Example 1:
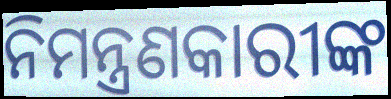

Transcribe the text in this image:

ନିମନ୍ତ୍ରଣକାରୀଙ୍କ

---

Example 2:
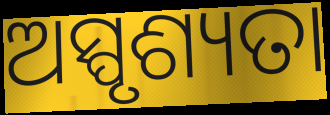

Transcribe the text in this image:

ଅସ୍ପୃଶ୍ୟତା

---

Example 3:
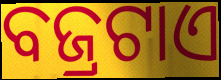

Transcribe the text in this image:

ବଜ୍ରଟାଏ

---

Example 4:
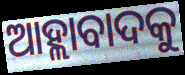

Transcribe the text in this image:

ଆହ୍ଲାବାଦକୁ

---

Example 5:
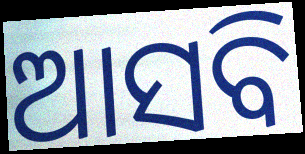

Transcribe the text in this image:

ଆସବି